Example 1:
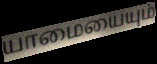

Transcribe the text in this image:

யாமையையும்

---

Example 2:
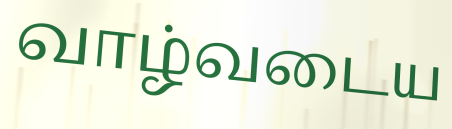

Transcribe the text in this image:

வாழ்வடைய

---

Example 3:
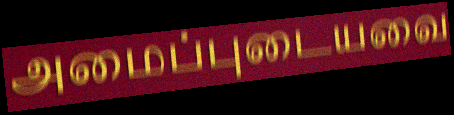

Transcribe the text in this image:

அமைப்புடையவை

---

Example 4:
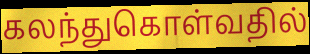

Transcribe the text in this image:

கலந்துகொள்வதில்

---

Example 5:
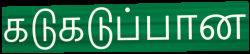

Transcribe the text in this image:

கடுகடுப்பான